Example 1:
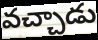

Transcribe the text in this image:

వచ్చాడు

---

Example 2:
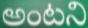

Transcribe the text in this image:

అంటని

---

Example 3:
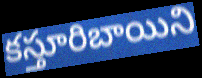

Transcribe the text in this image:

కస్తూరిబాయిని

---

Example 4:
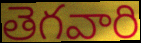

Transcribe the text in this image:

తెగవారి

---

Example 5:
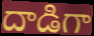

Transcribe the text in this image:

దాడిగా